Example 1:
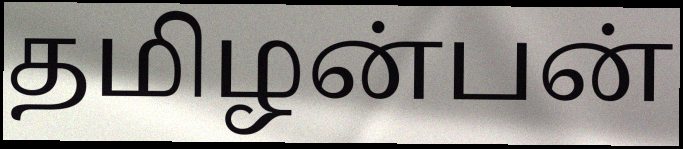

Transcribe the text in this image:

தமிழன்பன்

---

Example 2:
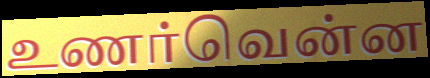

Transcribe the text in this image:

உணர்வென்ன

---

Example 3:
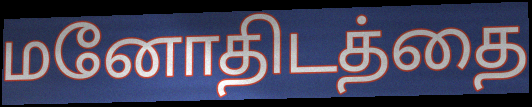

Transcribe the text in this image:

மனோதிடத்தை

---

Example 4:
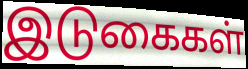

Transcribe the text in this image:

இடுகைகள்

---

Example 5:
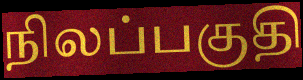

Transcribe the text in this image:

நிலப்பகுதி